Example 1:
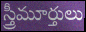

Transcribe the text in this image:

స్త్రీమూర్తులు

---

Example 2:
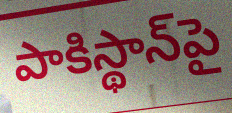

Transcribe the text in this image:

పాకిస్థాన్‌పై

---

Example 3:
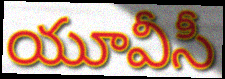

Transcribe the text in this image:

యూవీసీ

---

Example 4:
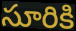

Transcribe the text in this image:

సూరికి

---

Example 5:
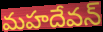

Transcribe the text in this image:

మహదేవన్